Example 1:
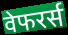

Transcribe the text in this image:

वेफरर्स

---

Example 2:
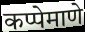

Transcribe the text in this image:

कप्पेमाणे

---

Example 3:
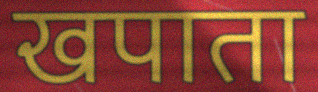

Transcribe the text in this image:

खपाता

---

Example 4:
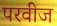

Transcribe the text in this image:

परवीज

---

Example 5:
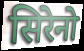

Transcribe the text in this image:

सिरेनो